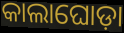
କାଲାଘୋଡ଼ା